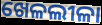
ଖେଳଲୀଳା